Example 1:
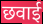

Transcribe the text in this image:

छवाई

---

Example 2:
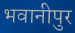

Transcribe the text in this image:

भवानीपुर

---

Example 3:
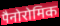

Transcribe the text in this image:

पैनोरोमिक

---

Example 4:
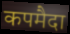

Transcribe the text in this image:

कपमैदा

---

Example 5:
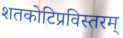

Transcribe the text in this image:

शतकोटिप्रविस्तरम्